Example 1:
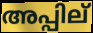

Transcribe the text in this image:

അപ്പില്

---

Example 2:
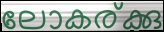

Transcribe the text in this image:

ലോകര്ക്കു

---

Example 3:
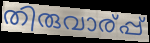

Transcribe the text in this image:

തിരുവാര്പ്പ്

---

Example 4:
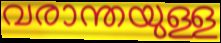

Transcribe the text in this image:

വരാന്തയുള്ള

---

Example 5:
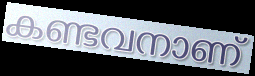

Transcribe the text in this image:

കണ്ടവനാണ്